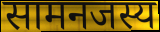
सामनजस्य